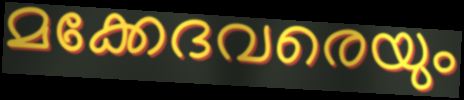
മക്കേദവരെയും